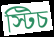
স্টিচ